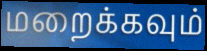
மறைக்கவும்